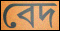
বেদ